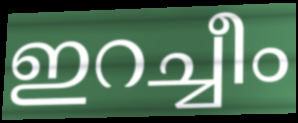
ഇറച്ചീം